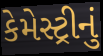
કેમેસ્ટ્રીનું